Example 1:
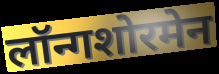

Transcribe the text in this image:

लॉन्गशोरमेन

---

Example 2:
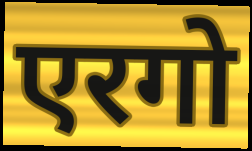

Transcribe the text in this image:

एरगो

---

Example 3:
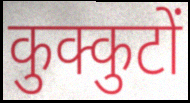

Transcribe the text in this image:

कुक्कुटों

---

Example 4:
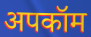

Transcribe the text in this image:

अपकॉम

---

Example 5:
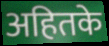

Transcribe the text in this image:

अहितके